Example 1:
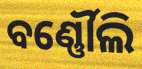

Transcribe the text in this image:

ବର୍ଣ୍ଣୌଲି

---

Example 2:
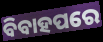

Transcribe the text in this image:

ବିବାହପରେ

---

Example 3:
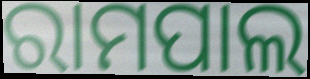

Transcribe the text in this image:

ରାମପାଲ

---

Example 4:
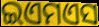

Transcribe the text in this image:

ଇଏମଏସ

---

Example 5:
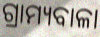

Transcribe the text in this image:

ଗ୍ରାମ୍ୟବାଳା